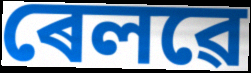
ৰেলৱে